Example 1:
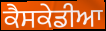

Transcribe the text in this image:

ਕੈਸਕੇਡੀਆ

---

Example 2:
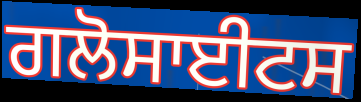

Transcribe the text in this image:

ਗਲੋਸਾਈਟਸ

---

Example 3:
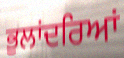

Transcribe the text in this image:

ਭੁਲਾਂਦਰਿਆਂ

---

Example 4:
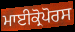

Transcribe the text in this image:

ਮਾਈਕ੍ਰੋਪੋਰਸ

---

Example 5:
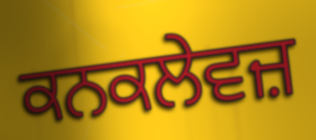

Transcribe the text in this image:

ਕਨਕਲੇਵਜ਼